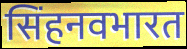
सिंहनवभारत